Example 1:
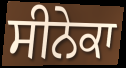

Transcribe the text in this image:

ਸੀਨੇਕਾ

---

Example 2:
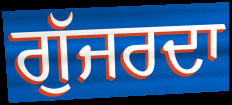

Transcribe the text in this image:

ਗੁੱਜਰਦਾ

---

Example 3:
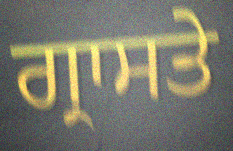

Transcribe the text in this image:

ਗ੍ਰਾਸਤੇ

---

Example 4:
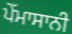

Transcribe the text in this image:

ਪੇੱਮਾਸਾਨੀ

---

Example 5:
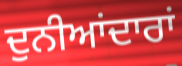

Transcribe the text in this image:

ਦੁਨੀਆਂਦਾਰਾਂ